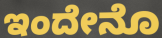
ಇಂದೇನೊ